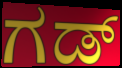
ಗಡ್